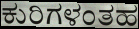
ಕುರಿಗಳಂತಹ